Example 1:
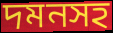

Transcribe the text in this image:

দমনসহ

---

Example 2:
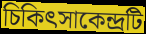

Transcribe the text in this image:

চিকিৎসাকেন্দ্রটি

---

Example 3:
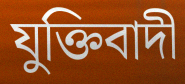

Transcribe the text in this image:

যুক্তিবাদী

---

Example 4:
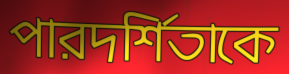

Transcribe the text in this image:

পারদর্শিতাকে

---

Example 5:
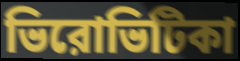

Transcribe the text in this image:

ভিরোভিটিকা